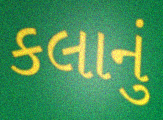
કલાનું